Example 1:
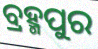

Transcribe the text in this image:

ବ୍ରହ୍ମପୁର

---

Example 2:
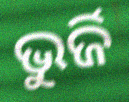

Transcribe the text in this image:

ଭୁର୍ଜି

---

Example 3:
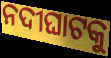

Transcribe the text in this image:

ନଦୀଘାଟକୁ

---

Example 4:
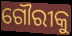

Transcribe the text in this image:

ଗୌରୀକୁ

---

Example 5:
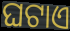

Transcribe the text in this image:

ଘଟାଏ